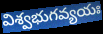
విశ్వభుగవ్యయః